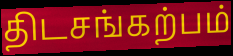
திடசங்கற்பம்